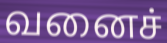
வனைச்